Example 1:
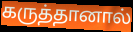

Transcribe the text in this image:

கருத்தானால்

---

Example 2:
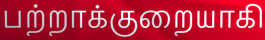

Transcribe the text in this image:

பற்றாக்குறையாகி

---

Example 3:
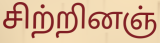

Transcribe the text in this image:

சிற்றினஞ்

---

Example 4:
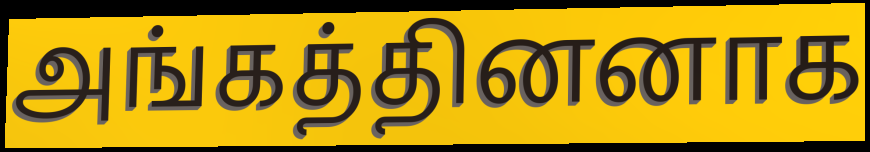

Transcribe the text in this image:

அங்கத்தினனாக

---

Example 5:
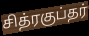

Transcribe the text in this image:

சித்ரகுப்தர்